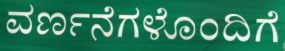
ವರ್ಣನೆಗಳೊಂದಿಗೆ